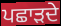
ਪਛਾੜਦੇ